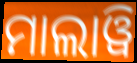
ମାଲାୱି